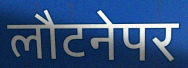
लौटनेपर